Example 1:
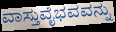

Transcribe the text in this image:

ವಾಸ್ತುವೈಭವವನ್ನು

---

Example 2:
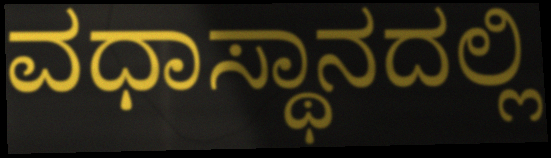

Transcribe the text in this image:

ವಧಾಸ್ಥಾನದಲ್ಲಿ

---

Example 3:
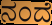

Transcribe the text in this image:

ನಂದೆ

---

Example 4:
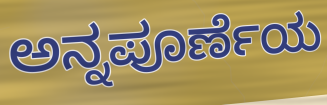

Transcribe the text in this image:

ಅನ್ನಪೂರ್ಣೆಯ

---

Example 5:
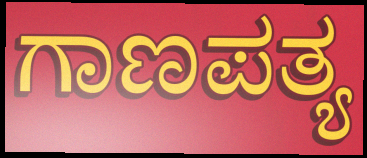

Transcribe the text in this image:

ಗಾಣಪತ್ಯ